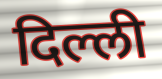
दिल्‍ली